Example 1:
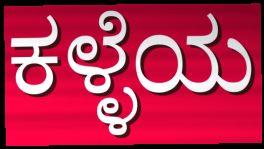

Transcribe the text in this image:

ಕಳ್ಳೆಯ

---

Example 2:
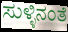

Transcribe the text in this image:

ಸುಳ್ಳಿನಂತೆ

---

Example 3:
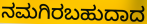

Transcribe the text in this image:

ನಮಗಿರಬಹುದಾದ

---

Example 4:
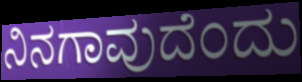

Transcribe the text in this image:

ನಿನಗಾವುದೆಂದು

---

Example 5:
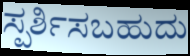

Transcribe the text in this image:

ಸ್ಪರ್ಶಿಸಬಹುದು